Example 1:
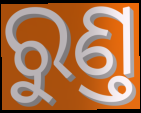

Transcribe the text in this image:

ରୁଣ୍ତ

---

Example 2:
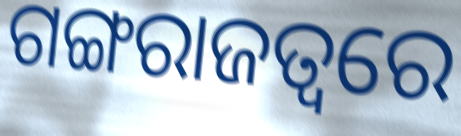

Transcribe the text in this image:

ଗଙ୍ଗରାଜତ୍ୱରେ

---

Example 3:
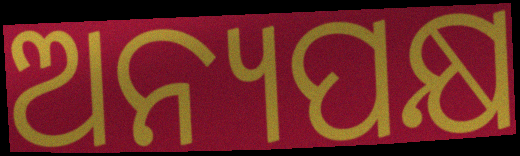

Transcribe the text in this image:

ଅନ୍ୟପକ୍ଷ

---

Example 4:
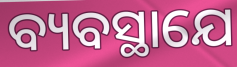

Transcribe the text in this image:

ବ୍ୟବସ୍ଥାଯେ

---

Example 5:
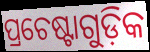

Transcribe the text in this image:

ପ୍ରଚେଷ୍ଟାଗୁଡ଼ିକ